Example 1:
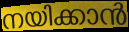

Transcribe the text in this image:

നയിക്കാൻ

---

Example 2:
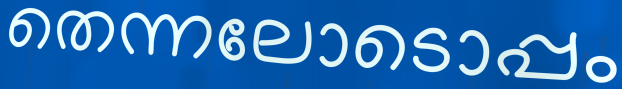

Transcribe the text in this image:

തെന്നലോടൊപ്പം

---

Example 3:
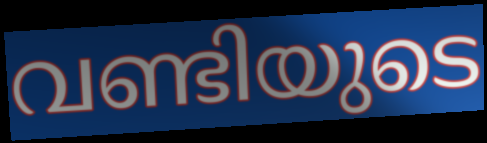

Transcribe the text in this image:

വണ്ടിയുടെ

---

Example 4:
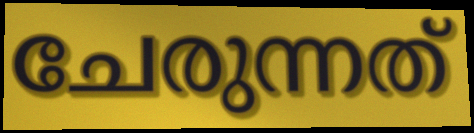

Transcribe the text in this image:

ചേരുന്നത്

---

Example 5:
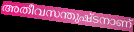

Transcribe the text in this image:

അതീവസന്തുഷ്ടനാണ്